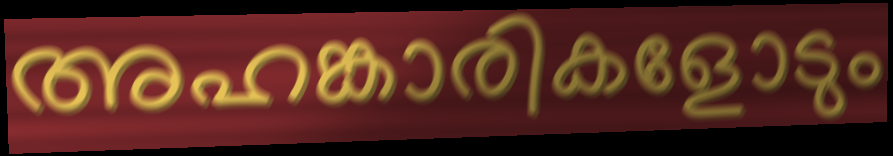
അഹങ്കാരികളോടും